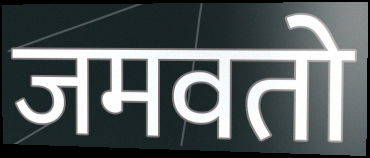
जमवतो